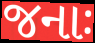
જનાઃ